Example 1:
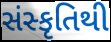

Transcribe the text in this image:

સંસ્કૃતિથી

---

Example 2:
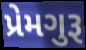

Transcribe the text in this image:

પ્રેમગુરૂ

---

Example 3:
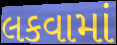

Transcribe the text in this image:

લકવામાં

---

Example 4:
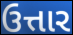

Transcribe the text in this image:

ઉત્તાર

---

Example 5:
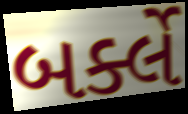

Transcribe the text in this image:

બર્ક્લે